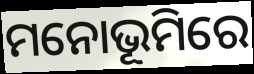
ମନୋଭୂମିରେ